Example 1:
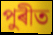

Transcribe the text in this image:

পুৰীত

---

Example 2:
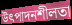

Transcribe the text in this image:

উৎপাদনশীলতা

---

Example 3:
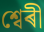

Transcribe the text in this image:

শ্বেৰী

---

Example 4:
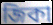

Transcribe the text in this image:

জিকা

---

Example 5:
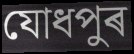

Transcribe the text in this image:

যোধপুৰ